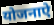
योजनाऐ